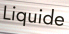
Liquide